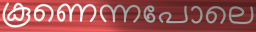
കൂണെന്നപോലെ